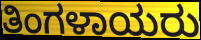
ತಿಂಗಳಾಯರು